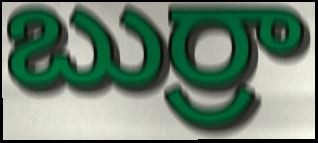
బుర్రా